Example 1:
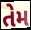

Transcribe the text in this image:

તેમ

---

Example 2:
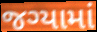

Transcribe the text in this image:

જગ્યામાં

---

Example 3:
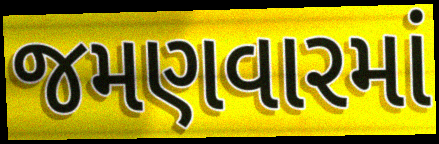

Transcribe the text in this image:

જમણવારમાં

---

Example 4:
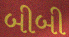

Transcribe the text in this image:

બીબી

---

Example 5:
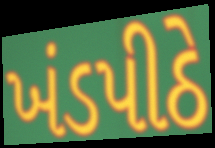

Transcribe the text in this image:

ખંડપીઠે